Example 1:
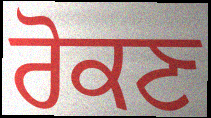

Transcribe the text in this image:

ਰੋਕਣ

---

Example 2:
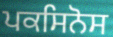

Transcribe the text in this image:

ਪਕਸਿਨੋਸ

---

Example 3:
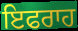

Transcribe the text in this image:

ਇਫਰਾਹ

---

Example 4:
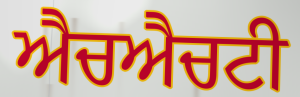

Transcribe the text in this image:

ਐਚਐਚਟੀ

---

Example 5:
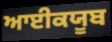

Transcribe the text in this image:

ਆਈਕਯੂਬ